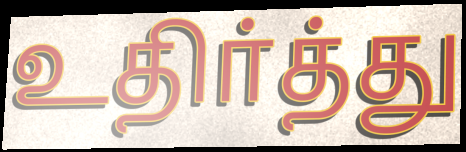
உதிர்த்து